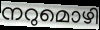
നറുമൊഴി